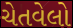
ચેતવેલો